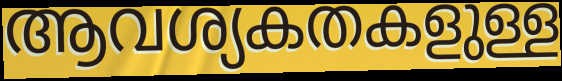
ആവശ്യകതകളുള്ള